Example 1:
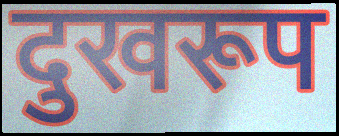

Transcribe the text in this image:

दुखरूप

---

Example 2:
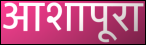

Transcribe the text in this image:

आशापूरा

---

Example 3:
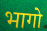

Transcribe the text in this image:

भागो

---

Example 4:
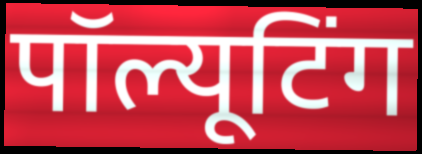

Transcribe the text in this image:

पॉल्यूटिंग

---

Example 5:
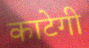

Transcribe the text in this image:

काटेगी